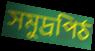
সমুদ্রপিঠ